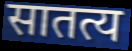
सातत्य